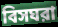
বিসঘরা